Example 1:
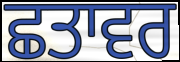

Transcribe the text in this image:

ਛਤਾਵਰ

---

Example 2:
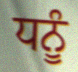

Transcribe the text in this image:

ਧਨੂੰ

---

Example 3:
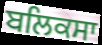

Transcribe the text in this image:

ਬਲਿਕਸਾ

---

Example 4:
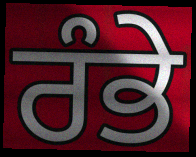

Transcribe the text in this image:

ਰੰਭੇ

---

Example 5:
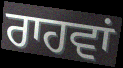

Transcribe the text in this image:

ਰਾਹਵਾਂ